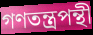
গণতন্ত্রপন্থী